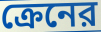
ক্রেনের